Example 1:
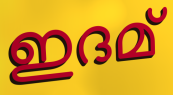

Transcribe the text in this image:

ഇദമ്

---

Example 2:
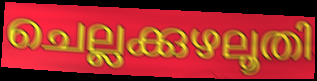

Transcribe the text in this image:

ചെല്ലക്കുഴലൂതി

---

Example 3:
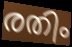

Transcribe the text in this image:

രതിം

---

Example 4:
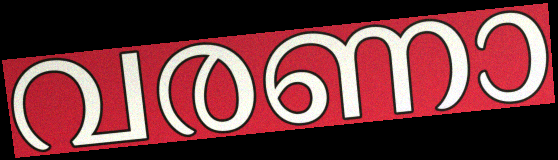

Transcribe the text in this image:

വരണാ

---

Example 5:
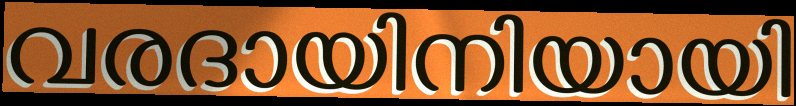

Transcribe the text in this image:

വരദായിനിയായി